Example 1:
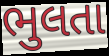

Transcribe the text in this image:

ભુલતા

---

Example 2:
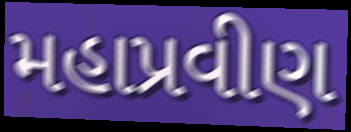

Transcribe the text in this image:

મહાપ્રવીણ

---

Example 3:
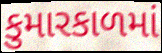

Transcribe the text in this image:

કુમારકાળમાં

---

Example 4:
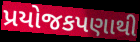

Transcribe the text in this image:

પ્રયોજકપણાથી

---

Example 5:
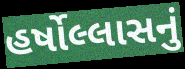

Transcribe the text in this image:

હર્ષોલ્લાસનું